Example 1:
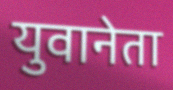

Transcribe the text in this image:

युवानेता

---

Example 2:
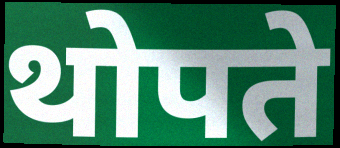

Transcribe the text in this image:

थोपते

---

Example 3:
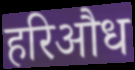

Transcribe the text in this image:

हरिऔध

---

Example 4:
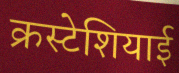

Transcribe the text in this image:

क्रस्टेशियाई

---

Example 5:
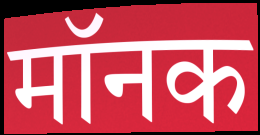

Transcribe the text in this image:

मॉनक